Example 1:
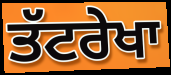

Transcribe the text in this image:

ਤੱਟਰੇਖਾ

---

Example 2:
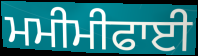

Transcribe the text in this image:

ਮਮੀਮੀਫਾਈ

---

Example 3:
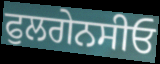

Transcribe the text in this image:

ਫੁਲਗੇਨਸੀਓ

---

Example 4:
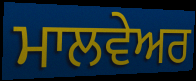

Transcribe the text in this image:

ਮਾਲਵੇਅਰ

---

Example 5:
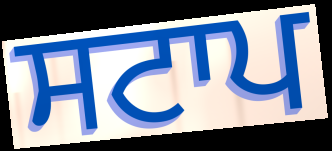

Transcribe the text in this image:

ਸਟਾਪ